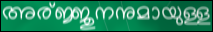
അര്ജ്ജുനനുമായുള്ള